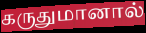
கருதுமானால்